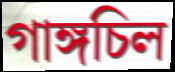
গাঙ্গচিল